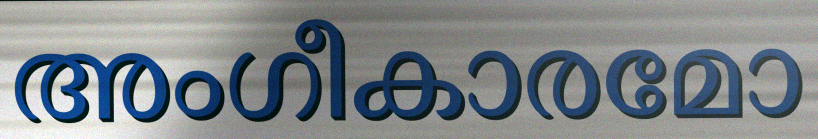
അംഗീകാരമോ